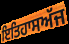
ਇਤਿਹਾਸਅੱਜ